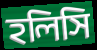
হলিসি